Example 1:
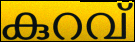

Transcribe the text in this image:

കുറവ്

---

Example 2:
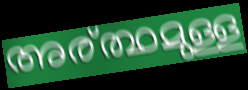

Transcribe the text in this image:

അര്ത്ഥമുള്ള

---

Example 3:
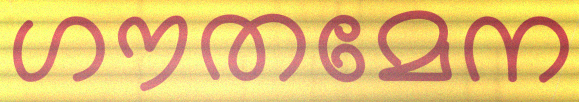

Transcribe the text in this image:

ഗൗതമേന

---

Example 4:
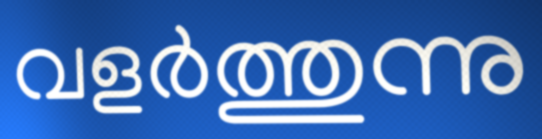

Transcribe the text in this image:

വളർത്തുന്നു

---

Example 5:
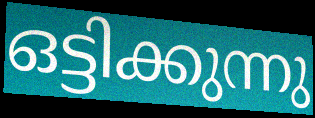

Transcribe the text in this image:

ഒട്ടിക്കുന്നു